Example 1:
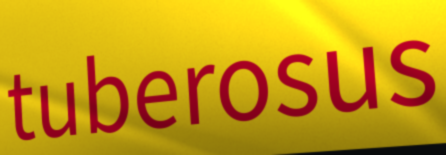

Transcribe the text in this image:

tuberosus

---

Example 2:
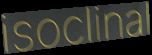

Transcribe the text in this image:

isoclinal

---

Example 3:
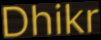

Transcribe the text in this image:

Dhikr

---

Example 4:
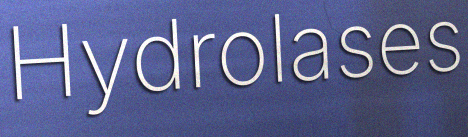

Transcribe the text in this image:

Hydrolases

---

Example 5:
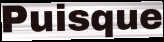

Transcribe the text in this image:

Puisque